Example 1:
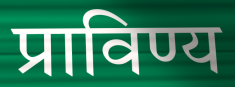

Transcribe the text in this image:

प्राविण्य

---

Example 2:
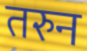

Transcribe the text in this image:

तरुन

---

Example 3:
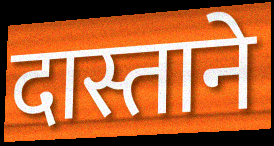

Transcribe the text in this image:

दास्ताने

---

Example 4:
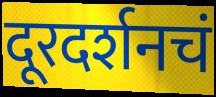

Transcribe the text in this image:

दूरदर्शनचं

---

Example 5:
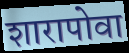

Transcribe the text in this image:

शारापोवा